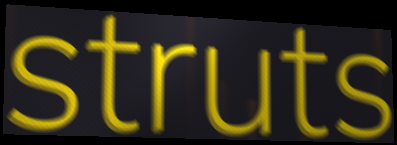
struts